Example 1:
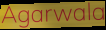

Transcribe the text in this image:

Agarwala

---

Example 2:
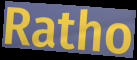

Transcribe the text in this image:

Ratho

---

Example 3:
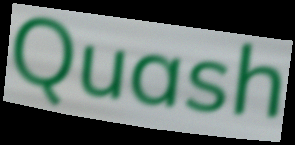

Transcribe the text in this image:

Quash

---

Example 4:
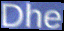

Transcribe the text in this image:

Dhe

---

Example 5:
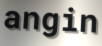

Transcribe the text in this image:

angin